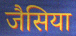
जैसिया